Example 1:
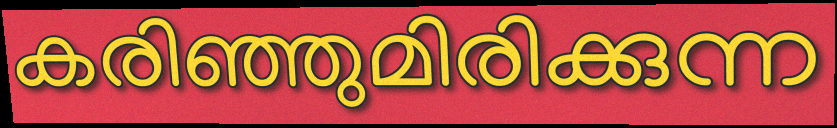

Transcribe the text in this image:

കരിഞ്ഞുമിരിക്കുന്ന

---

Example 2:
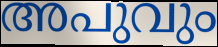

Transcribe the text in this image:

അപുവും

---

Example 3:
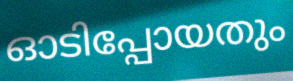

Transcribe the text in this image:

ഓടിപ്പോയതും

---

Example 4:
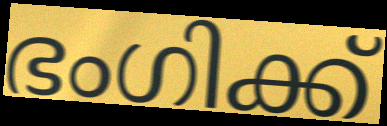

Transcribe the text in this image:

ഭംഗിക്ക്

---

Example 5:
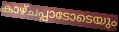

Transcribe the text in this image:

കാഴ്ചപ്പാടോടെയും